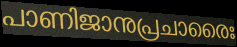
പാണിജാനുപ്രചാരൈഃ